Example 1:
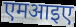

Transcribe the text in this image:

एमआइए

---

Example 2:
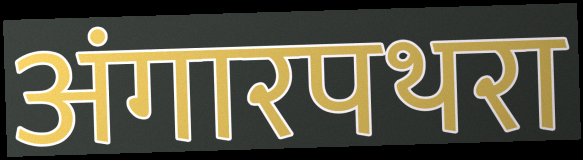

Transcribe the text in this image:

अंगारपथरा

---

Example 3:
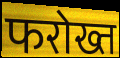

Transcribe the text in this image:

फरोख्‍त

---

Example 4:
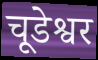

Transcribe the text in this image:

चूडेश्वर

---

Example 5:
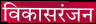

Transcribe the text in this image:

विकासरंजन